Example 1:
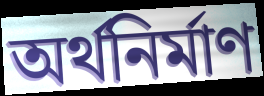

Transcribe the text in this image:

অর্থনির্মাণ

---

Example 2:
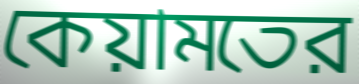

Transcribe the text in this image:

কেয়ামতের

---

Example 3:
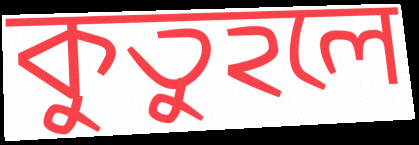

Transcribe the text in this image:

কুতুহলে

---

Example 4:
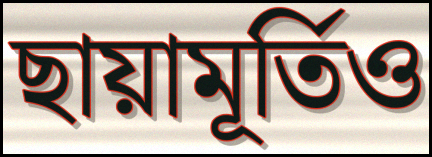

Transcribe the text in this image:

ছায়ামূর্তিও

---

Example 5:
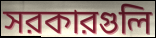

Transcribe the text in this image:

সরকারগুলি